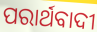
ପରାର୍ଥବାଦୀ